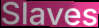
Slaves